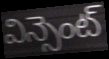
విన్సెంట్